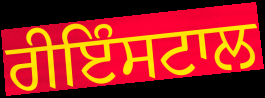
ਰੀਇੰਸਟਾਲ